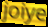
joiye